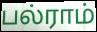
பல்ராம்